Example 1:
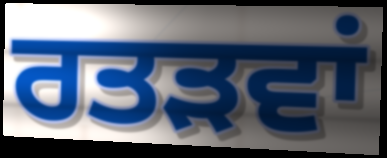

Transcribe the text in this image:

ਰਤੜਵਾਂ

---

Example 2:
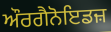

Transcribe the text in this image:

ਔਰਗੈਨੋਇਡਜ਼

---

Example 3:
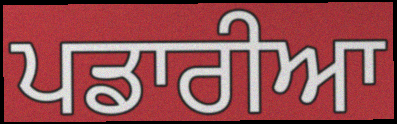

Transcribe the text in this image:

ਪਡਾਰੀਆ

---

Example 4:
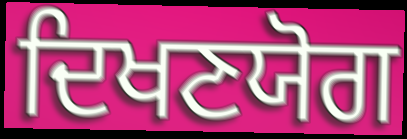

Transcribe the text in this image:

ਦਿਖਣਯੋਗ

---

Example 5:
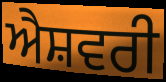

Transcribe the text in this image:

ਐਸ਼ਵਰੀ